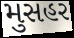
મુસહર